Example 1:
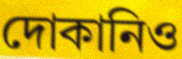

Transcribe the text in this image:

দোকানিও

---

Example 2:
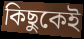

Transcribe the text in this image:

কিছুকেই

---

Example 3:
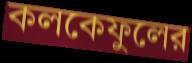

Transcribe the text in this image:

কলকেফুলের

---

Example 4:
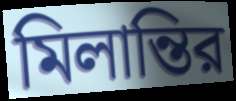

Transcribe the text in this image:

মিলান্তির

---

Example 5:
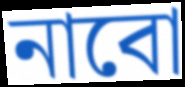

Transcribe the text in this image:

নাবো